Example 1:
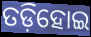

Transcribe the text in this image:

ତଡ଼ିହୋଇ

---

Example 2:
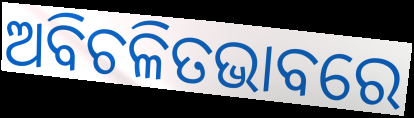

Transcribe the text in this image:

ଅବିଚଳିତଭାବରେ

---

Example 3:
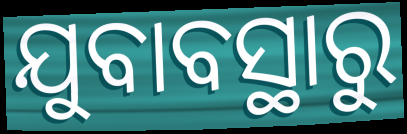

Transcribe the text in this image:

ଯୁବାବସ୍ଥାରୁ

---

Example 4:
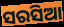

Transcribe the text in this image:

ସରସିଆ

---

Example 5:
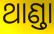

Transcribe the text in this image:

ଥାଣ୍ଡା